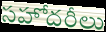
సహోదరీలు